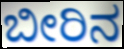
ಬೀರಿನ